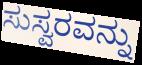
ಸುಸ್ವರವನ್ನು